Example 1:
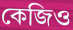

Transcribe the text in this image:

কেজিও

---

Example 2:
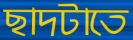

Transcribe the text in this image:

ছাদটাতে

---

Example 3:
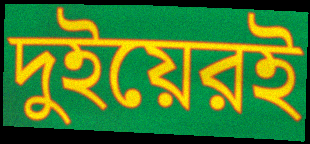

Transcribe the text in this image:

দুইয়েরই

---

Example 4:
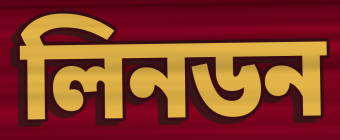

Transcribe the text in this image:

লিনডন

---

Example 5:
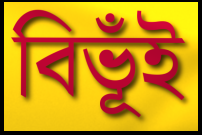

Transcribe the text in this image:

বিভূঁই